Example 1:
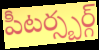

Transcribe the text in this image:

పీటర్స్బర్గ్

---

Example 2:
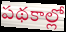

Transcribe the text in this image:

పథకాల్లో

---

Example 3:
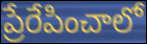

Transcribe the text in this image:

ప్రేరేపించాలో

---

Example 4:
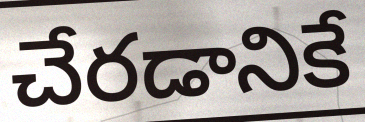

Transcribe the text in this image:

చేరడానికే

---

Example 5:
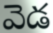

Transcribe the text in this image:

వెడ